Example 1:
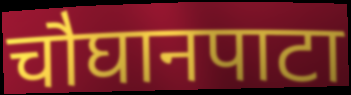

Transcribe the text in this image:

चौघानपाटा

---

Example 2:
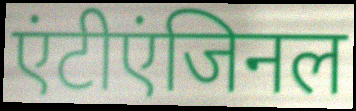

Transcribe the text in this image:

एंटीएंजिनल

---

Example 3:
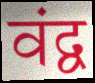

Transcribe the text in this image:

वंद्व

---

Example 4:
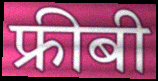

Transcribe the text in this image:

फ्रीबी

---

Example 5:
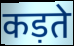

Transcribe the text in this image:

कड़ते